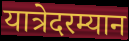
यात्रेदरम्यान